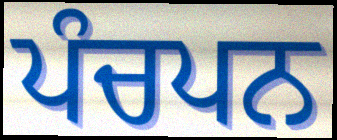
ਪੰਚਪਨ